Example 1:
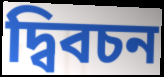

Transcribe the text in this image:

দ্বিবচন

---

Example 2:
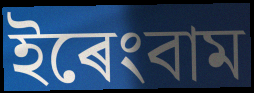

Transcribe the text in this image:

ইৰেংবাম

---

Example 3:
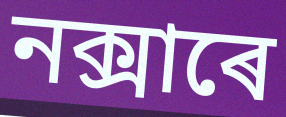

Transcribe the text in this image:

নক্সাৰে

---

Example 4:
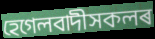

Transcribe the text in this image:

হেগেলবাদীসকলৰ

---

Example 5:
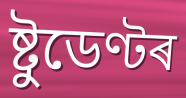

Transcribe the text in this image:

ষ্টুডেণ্টৰ